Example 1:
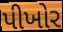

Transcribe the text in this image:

પીખોર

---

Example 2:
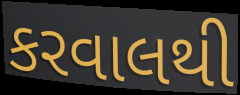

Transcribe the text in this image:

કરવાલથી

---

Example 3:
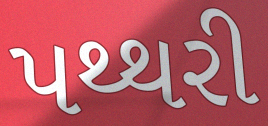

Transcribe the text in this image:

પથ્થરી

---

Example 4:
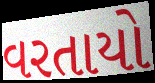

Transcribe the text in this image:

વરતાયો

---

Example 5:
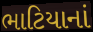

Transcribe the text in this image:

ભાટિયાનાં